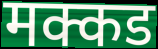
मक्कड